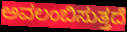
ಅವಲಂಬಿಸುತ್ತದೆ